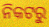
ନିକଟରୁ